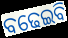
ବଢେଇବି